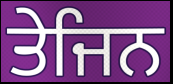
ਤੇਜਿਨ